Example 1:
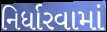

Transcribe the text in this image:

નિર્ધારવામાં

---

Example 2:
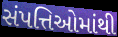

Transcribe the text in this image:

સંપત્તિઓમાંથી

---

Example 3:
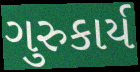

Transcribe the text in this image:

ગુરુકાર્ય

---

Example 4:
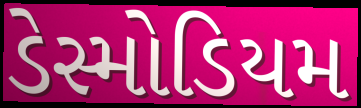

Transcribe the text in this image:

ડેસ્મોડિયમ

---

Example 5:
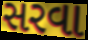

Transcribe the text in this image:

સરવા